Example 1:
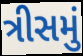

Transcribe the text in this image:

ત્રીસમું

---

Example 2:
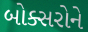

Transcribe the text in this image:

બોક્સરોને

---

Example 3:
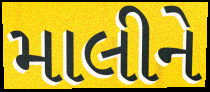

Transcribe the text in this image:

માલીને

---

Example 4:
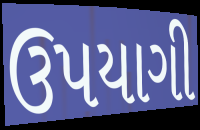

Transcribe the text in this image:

ઉપયાગી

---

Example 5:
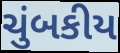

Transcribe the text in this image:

ચુંબકીય